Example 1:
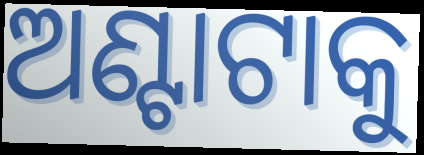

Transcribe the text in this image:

ଅଣ୍ଟାଟାକୁ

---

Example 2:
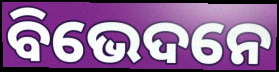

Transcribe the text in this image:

ବିଭେଦନେ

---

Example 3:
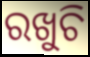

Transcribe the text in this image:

ରଖୁଚି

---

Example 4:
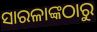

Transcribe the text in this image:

ସାରଳାଙ୍କଠାରୁ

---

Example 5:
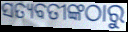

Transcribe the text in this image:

ସତ୍ୟବତୀଙ୍କଠାରୁ